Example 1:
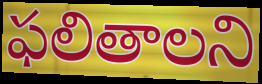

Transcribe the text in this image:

ఫలితాలని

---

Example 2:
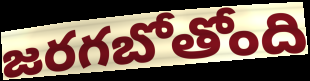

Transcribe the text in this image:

జరగబోతోంది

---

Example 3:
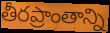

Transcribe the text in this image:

తీరప్రాంతాన్ని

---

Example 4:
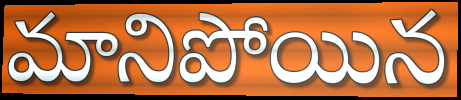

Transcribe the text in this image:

మానిపోయిన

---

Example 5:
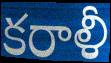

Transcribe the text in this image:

కరాళీ